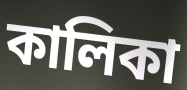
কালিকা